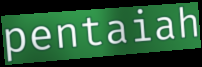
pentaiah